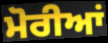
ਮੋਰੀਆਂ